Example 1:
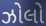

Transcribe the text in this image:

ઝોલો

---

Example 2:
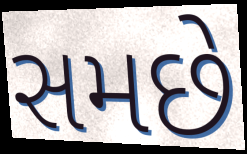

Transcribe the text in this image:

સમછે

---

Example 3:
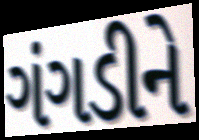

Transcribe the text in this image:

ગંગડીને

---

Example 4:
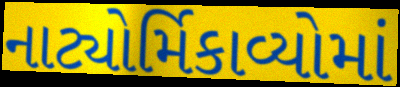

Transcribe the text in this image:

નાટ્યોર્મિકાવ્યોમાં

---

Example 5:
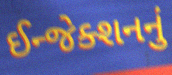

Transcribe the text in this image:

ઈન્જેક્શનનું